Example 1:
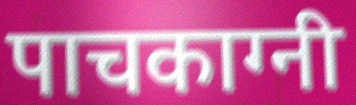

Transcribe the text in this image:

पाचकाग्नी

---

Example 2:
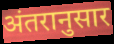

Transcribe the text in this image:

अंतरानुसार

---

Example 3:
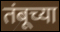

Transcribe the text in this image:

तंबूच्या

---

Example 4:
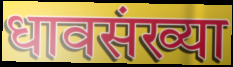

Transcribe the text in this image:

धावसंख्या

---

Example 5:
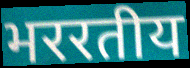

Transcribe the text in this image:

भररतीय